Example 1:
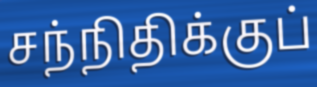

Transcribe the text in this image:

சந்நிதிக்குப்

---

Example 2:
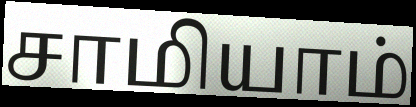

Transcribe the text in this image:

சாமியாம்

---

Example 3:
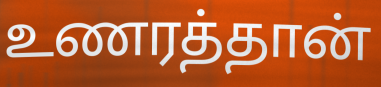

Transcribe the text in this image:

உணரத்தான்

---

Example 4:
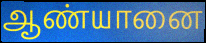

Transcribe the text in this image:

ஆண்யானை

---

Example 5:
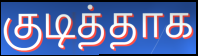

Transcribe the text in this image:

குடித்தாக